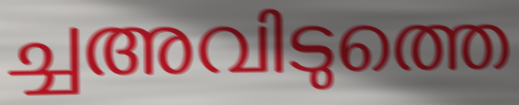
ച്ചഅവിടുത്തെ